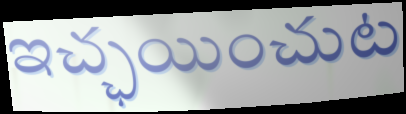
ఇచ్ఛయించుట